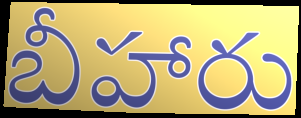
బీహారు